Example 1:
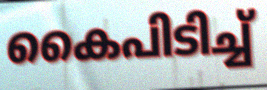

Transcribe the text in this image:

കൈപിടിച്ച്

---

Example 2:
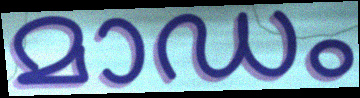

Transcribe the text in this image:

മാഡം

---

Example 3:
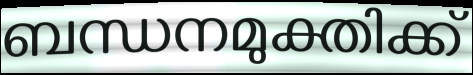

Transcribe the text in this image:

ബന്ധനമുക്തിക്ക്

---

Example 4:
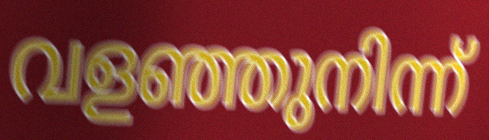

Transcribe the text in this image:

വളഞ്ഞുനിന്ന്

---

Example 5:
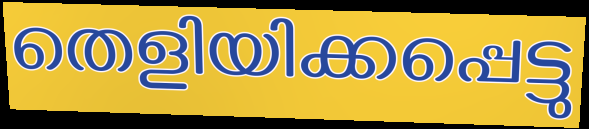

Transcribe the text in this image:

തെളിയിക്കപ്പെട്ടു